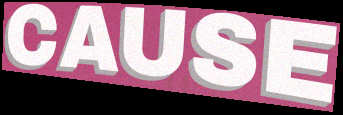
CAUSE